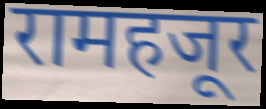
रामहजूर